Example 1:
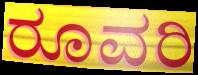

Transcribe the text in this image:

ರೂವರಿ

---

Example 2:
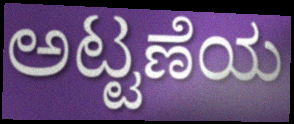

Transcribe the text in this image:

ಅಟ್ಟಣೆಯ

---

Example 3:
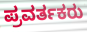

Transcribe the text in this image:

ಪ್ರವರ್ತಕರು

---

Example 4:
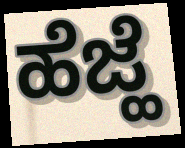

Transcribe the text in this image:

ಹೆಜ್ಹೆ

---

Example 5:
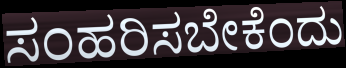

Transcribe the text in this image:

ಸಂಹರಿಸಬೇಕೆಂದು